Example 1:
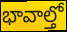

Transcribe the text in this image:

భావాల్తో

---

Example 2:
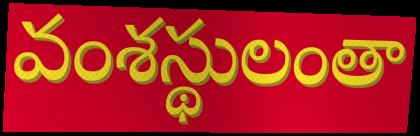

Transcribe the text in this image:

వంశస్థులంతా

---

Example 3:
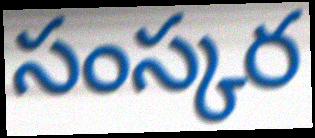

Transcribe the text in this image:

సంస్కర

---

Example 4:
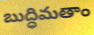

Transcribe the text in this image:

బుద్ధిమతాం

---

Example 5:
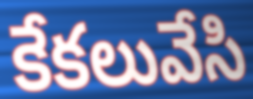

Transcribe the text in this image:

కేకలువేసి